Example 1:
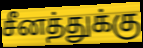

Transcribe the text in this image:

சீனத்துக்கு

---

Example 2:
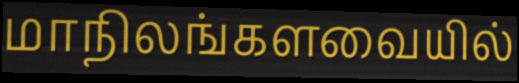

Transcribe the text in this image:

மாநிலங்களவையில்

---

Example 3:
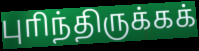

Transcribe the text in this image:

புரிந்திருக்கக்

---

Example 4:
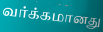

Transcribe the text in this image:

வர்க்கமானது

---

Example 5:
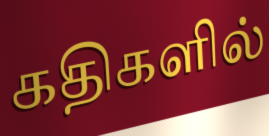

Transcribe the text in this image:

கதிகளில்